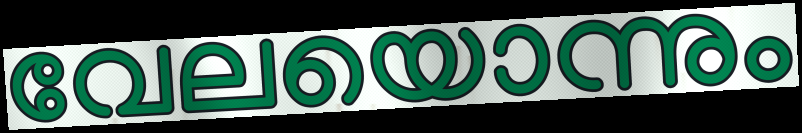
വേലയൊന്നും